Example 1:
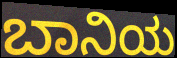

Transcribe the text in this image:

ಬಾನಿಯ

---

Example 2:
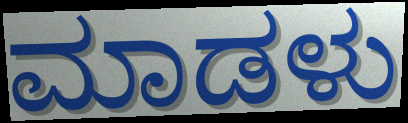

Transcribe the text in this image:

ಮಾಡಳು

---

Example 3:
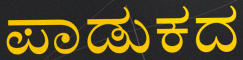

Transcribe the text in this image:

ಪಾಡುಕದ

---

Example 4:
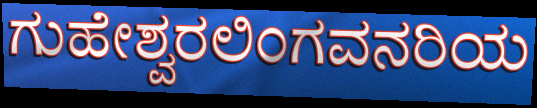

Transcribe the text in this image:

ಗುಹೇಶ್ವರಲಿಂಗವನರಿಯ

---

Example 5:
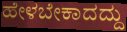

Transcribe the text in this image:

ಹೇಳಬೇಕಾದದ್ದು